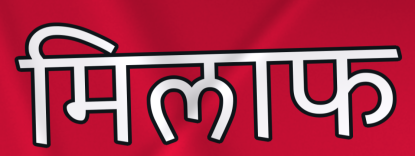
मिलाफ